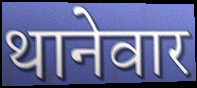
थानेवार